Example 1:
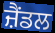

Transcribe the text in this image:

ਜ਼ੈਂਡਲ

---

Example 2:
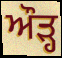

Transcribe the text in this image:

ਔੜ੍ਹ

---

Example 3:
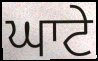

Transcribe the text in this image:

ਘਾਟੇ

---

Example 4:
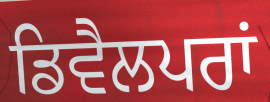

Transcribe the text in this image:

ਡਿਵੈਲਪਰਾਂ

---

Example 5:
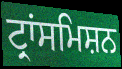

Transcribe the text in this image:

ਟ੍ਰਾਂਸਮਿਸ਼ਨ